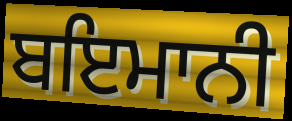
ਬਇਮਾਨੀ